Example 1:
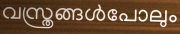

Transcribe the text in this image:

വസ്ത്രങ്ങൾപോലും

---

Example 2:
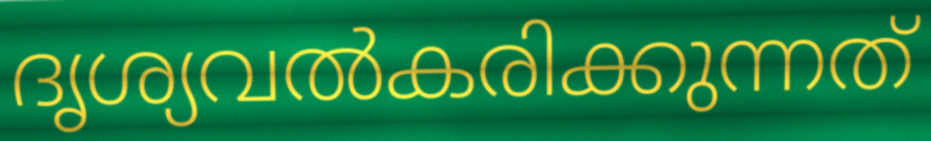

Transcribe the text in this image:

ദൃശ്യവൽകരിക്കുന്നത്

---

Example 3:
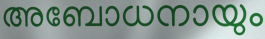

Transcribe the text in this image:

അബോധനായും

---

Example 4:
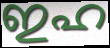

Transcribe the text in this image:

ഇഹ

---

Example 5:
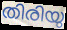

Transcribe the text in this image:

തിരിയു